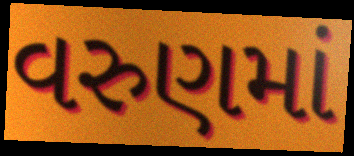
વરુણમાં